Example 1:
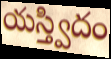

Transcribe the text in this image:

యస్త్విదం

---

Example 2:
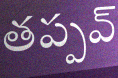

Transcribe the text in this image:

తప్పవ్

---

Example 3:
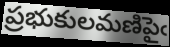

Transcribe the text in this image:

ప్రభుకులమణిపైఁ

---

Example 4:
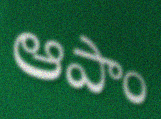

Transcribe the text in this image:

ఆపాం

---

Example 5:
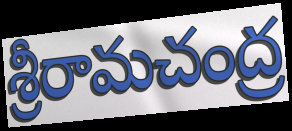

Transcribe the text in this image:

శ్రీరామచంద్ర